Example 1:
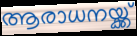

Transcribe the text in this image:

ആരാധനയ്ക്ക്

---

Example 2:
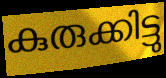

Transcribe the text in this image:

കുരുക്കിട്ടു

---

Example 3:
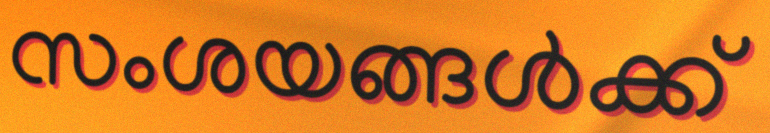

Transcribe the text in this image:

സംശയങ്ങൾക്ക്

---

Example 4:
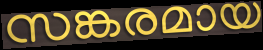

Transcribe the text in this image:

സങ്കരമായ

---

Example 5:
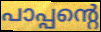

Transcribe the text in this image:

പാപ്പന്റെ